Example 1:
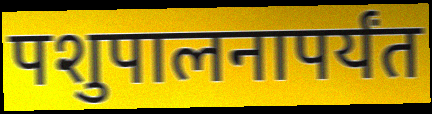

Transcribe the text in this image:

पशुपालनापर्यंत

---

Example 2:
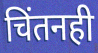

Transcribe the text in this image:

चिंतनही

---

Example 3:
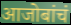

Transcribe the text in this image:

आजोबांचं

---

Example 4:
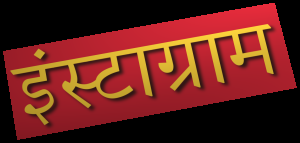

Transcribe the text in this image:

इंस्टाग्राम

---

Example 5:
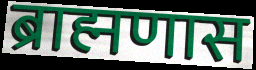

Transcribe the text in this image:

ब्राह्मणास